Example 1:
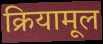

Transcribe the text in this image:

क्रियामूल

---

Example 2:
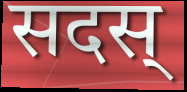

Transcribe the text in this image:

सदस्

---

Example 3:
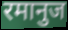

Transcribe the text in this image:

रमानुज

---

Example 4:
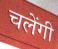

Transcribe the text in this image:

चलेंगी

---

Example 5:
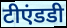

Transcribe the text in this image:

टीएंडडी